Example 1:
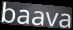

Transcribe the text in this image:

baava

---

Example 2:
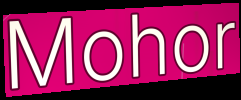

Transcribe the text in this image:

Mohor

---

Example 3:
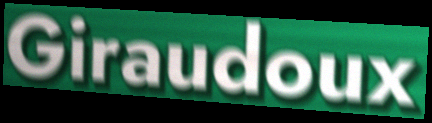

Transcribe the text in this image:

Giraudoux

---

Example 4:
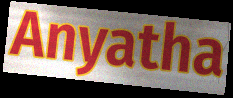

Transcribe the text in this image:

Anyatha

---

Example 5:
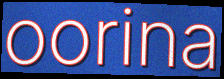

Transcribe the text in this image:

oorina